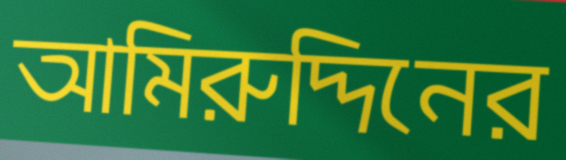
আমিরুদ্দিনের